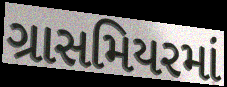
ગ્રાસમિયરમાં